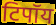
टिपॉय